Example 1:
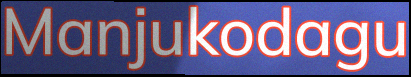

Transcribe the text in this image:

Manjukodagu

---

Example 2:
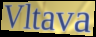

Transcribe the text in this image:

Vltava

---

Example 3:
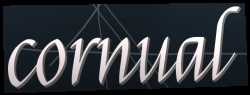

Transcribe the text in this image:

cornual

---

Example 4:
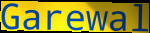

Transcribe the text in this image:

Garewal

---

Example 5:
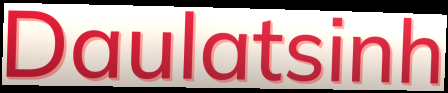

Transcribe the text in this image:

Daulatsinh